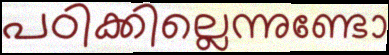
പഠിക്കില്ലെന്നുണ്ടോ